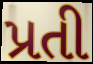
પ્રતી